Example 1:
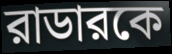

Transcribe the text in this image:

রাডারকে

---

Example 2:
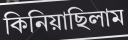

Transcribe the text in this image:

কিনিয়াছিলাম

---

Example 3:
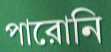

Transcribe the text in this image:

পারোনি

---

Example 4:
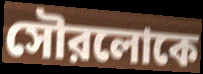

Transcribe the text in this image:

সৌরলোকে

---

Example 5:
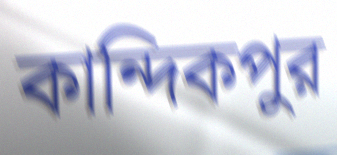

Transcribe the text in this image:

কান্দিকপুর